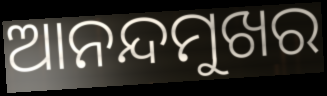
ଆନନ୍ଦମୁଖର